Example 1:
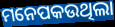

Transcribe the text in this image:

ମନେପକଉଥିଲା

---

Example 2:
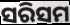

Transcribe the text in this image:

ସରିସମ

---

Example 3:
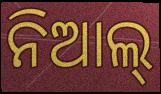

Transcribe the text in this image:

ନିଆଲ୍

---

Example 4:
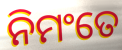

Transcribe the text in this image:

ନିମଂତେ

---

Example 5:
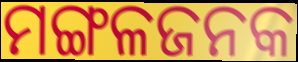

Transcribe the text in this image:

ମଙ୍ଗଳଜନକ